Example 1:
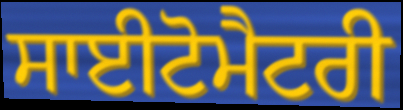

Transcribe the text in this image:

ਸਾਈਟੋਮੈਟਰੀ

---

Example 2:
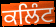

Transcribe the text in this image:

ਕਲਿੰਟ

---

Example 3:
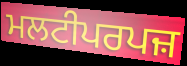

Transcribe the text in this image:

ਮਲਟੀਪਰਪਜ਼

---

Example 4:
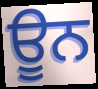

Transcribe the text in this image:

ਊਨ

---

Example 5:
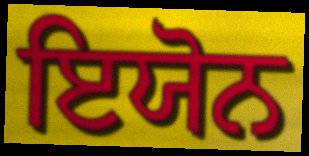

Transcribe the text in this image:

ਇਯੋਨ